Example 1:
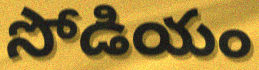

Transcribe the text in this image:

సోడియం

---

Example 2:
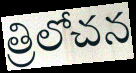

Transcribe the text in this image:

త్రిలోచన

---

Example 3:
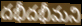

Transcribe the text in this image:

దభీదభీమని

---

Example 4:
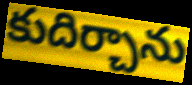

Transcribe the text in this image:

కుదిర్చాను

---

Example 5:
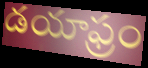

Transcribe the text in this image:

డయాఫ్రం